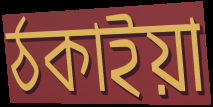
ঠকাইয়া